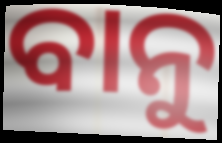
ବାନୁ